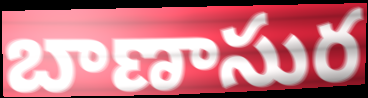
బాణాసుర